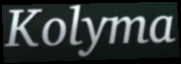
Kolyma